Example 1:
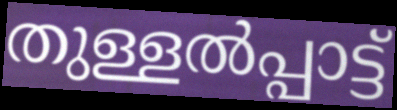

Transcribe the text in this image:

തുള്ളൽപ്പാട്ട്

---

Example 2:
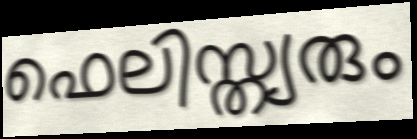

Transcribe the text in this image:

ഫെലിസ്ത്യരും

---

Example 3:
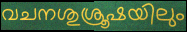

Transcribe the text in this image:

വചനശുശ്രൂഷയിലും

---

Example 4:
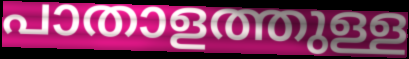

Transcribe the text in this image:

പാതാളത്തുള്ള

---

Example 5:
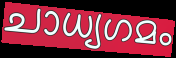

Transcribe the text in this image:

ചാധ്യഗമം